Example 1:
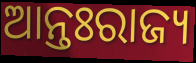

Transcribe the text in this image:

ଆନ୍ତଃରାଜ୍ୟ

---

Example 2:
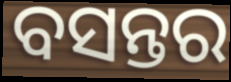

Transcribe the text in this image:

ବସନ୍ତର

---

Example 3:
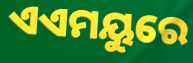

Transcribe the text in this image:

ଏଏମୟୁରେ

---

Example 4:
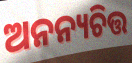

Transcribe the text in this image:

ଅନନ୍ୟଚିତ୍ତ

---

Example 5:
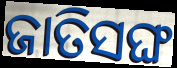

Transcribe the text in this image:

ଜାତିସଙ୍ଘ